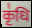
कृ॑धि